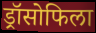
ड्रॉसोफिला